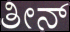
ತೀನ್